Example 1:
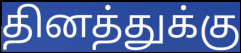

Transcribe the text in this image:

தினத்துக்கு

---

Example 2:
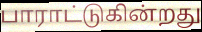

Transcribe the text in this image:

பாராட்டுகின்றது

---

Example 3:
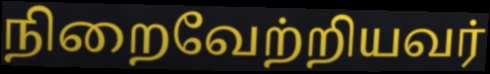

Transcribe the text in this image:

நிறைவேற்றியவர்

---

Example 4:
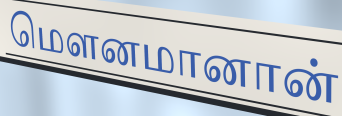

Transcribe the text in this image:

மௌனமானான்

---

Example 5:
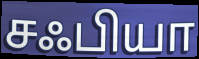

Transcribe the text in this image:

சஃபியா